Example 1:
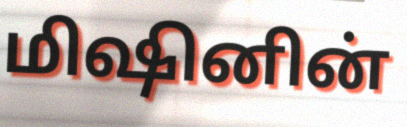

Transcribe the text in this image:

மிஷினின்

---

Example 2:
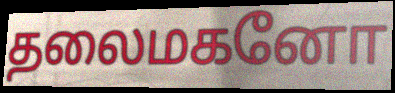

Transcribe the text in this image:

தலைமகனோ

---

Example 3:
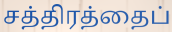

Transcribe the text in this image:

சத்திரத்தைப்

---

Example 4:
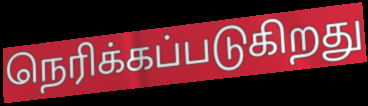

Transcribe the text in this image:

நெரிக்கப்படுகிறது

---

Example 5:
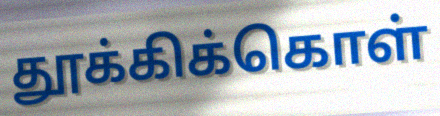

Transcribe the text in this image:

தூக்கிக்கொள்